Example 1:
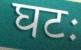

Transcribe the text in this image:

घटः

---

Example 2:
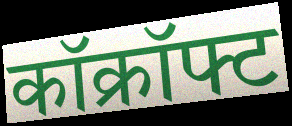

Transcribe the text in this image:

कॉक्रॉफ्ट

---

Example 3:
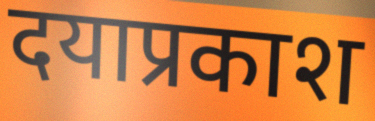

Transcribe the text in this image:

दयाप्रकाश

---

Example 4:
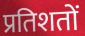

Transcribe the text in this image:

प्रतिशतों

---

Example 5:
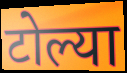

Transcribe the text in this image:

टोल्या